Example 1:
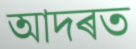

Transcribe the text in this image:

আদৰত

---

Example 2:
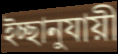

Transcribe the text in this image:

ইচ্ছানুযায়ী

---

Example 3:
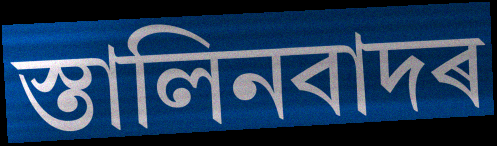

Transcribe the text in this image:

স্তালিনবাদৰ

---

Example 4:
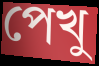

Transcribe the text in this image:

পেখু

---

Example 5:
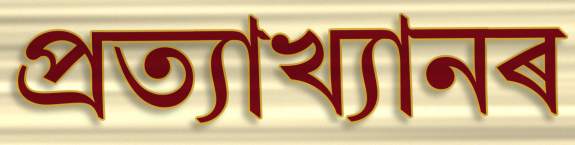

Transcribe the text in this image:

প্ৰত্যাখ্যানৰ